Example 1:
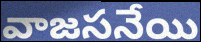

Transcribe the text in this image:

వాజసనేయి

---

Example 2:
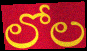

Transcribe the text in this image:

లోల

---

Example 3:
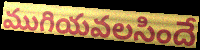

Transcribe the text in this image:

ముగియవలసిందే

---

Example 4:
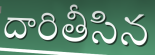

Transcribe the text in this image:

దారితీసిన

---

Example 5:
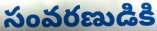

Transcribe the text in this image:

సంవరణుడికి